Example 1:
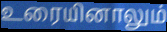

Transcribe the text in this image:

உரையினாலும்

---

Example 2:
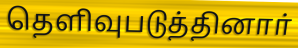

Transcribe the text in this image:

தெளிவுபடுத்தினார்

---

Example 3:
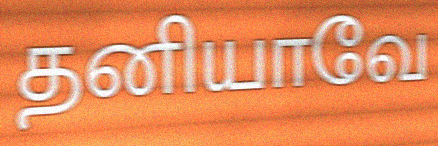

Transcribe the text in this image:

தனியாவே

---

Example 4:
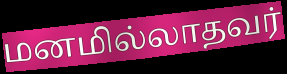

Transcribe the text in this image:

மனமில்லாதவர்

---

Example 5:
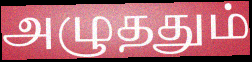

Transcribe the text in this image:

அழுததும்